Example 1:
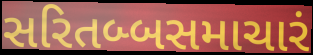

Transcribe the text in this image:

સરિતબ્બસમાચારં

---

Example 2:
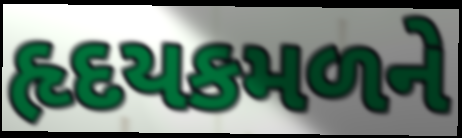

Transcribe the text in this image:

હૃદયકમળને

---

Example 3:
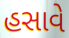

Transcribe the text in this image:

હસાવે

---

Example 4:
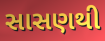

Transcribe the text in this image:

સાસણથી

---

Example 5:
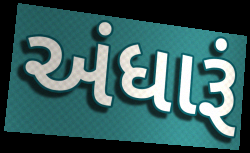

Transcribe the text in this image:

અંધારૂં